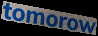
tomorow